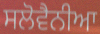
ਸਲੋਵੈਨੀਆ